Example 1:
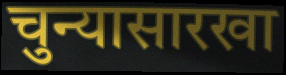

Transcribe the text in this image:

चुन्यासारखा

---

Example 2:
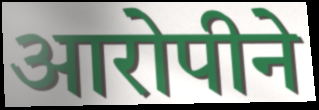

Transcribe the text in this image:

आरोपीने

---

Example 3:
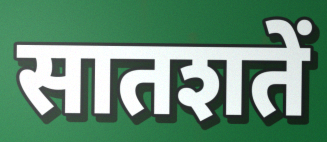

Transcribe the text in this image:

सातशतें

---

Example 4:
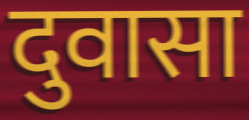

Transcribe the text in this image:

दुवासा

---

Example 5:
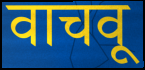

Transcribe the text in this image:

वाचवू